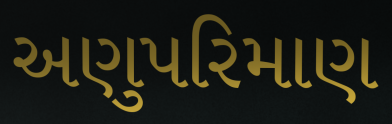
અણુપરિમાણ